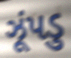
ઝૂંપડુ